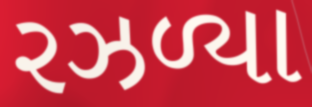
રઝળ્યા